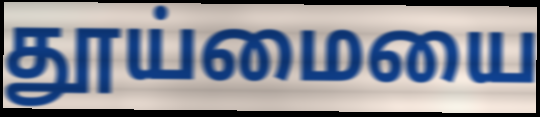
தூய்மையை